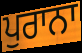
ਪੁਰਾਨਾ